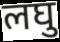
लघु